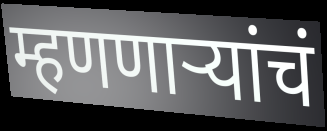
म्हणणाऱ्यांचं